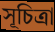
সূচিত্রা